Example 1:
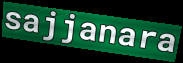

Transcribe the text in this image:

sajjanara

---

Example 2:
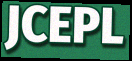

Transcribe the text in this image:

JCEPL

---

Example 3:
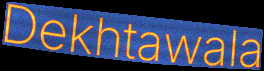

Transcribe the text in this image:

Dekhtawala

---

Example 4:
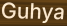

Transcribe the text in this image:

Guhya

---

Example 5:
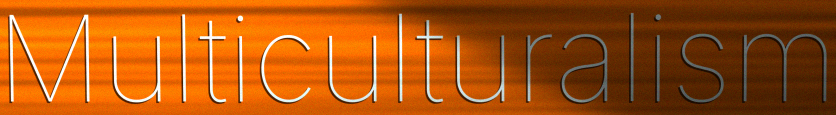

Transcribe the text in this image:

Multiculturalism